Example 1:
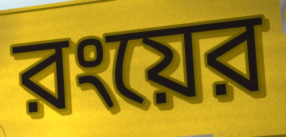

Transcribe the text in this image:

রংয়ের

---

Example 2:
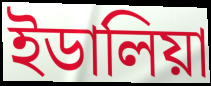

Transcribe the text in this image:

ইডালিয়া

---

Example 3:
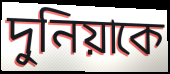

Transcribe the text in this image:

দুনিয়াকে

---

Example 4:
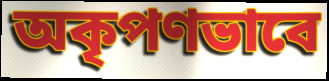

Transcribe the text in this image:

অকৃপণভাবে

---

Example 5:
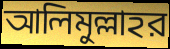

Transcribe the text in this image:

আলিমুল্লাহর